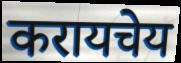
करायचेय